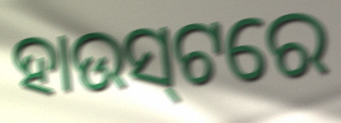
ହାଉସ୍‌ଟରେ